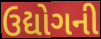
ઉદ્યોગની